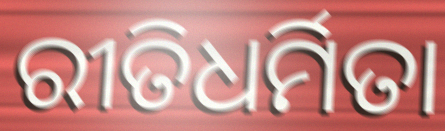
ରୀତିଧର୍ମିତା